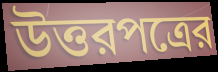
উত্তরপত্রের